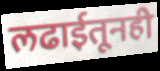
लढाईतूनही